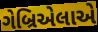
ગેબ્રિએલાએ